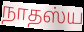
நாதஸ்ய